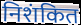
निशंकित